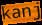
kanj